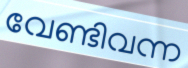
വേണ്ടിവന്ന